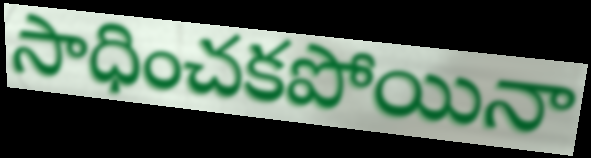
సాధించకపోయినా